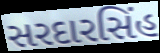
સરદારસિંહ